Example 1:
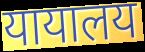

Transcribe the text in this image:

यायालय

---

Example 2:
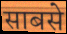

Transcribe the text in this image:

साबसे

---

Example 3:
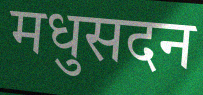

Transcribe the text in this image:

मधुसदन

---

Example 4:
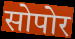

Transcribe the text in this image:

सोपोर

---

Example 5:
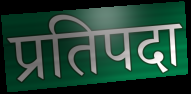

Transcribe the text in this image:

प्रतिपदा